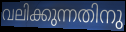
വലിക്കുന്നതിനു